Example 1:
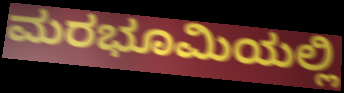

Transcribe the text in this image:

ಮರಭೂಮಿಯಲ್ಲಿ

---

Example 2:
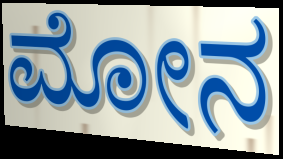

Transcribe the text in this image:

ಮೋನ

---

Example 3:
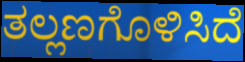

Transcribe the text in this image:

ತಲ್ಲಣಗೊಳಿಸಿದೆ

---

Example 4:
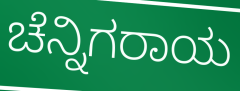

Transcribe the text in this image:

ಚೆನ್ನಿಗರಾಯ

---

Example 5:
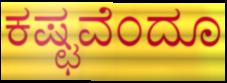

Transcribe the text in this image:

ಕಷ್ಟವೆಂದೂ